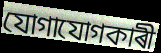
যোগাযোগকাৰী